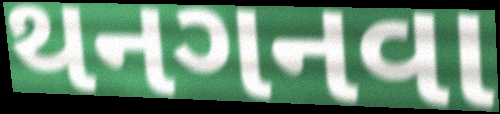
થનગનવા